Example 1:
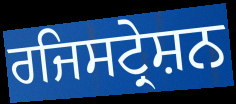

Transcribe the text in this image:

ਰਜਿਸਟ੍ਰੇਸ਼ਨ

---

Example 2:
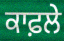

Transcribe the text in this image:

ਕਾਫ਼ਲੇ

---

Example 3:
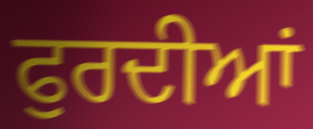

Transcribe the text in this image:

ਫੁਰਦੀਆਂ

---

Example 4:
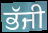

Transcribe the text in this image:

ਭੱਜੀ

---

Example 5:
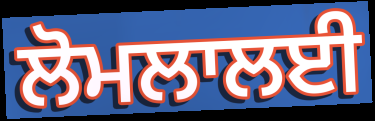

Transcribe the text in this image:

ਲੋਮਲਾਲਈ